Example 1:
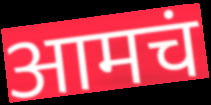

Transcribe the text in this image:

आमचं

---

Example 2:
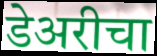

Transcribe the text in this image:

डेअरीचा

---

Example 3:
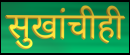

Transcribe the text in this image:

सुखांचीही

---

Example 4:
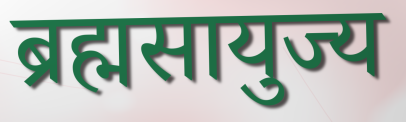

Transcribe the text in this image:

ब्रह्मसायुज्य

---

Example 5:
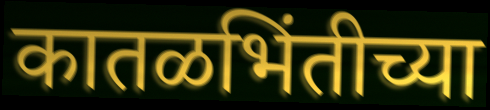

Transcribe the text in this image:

कातळभिंतीच्या